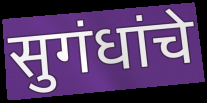
सुगंधांचे